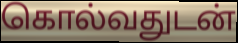
கொல்வதுடன்